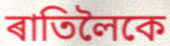
ৰাতিলৈকে